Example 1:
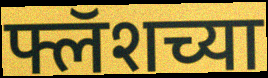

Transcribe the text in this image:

फ्लॅशच्या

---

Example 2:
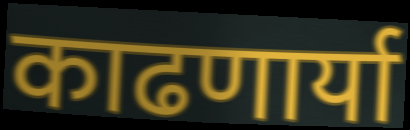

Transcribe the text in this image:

काढणार्या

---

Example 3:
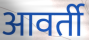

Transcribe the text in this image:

आवर्ती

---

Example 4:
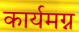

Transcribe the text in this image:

कार्यमग्न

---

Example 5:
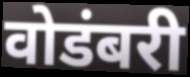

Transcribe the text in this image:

वोडंबरी